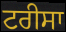
ਟਰੀਸਾ